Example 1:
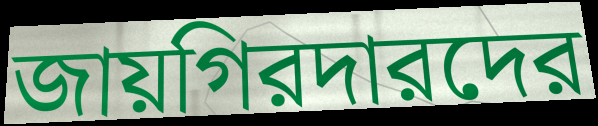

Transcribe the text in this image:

জায়গিরদারদের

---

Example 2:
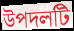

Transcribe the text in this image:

উপদলটি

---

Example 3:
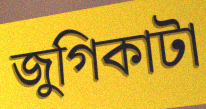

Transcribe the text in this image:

জুগিকাটা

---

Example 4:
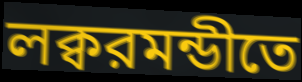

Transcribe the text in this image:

লক্বরমন্ডীতে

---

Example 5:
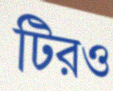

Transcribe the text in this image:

টিরও